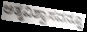
ಆತ್ಮವಿಶ್ವಾಸವನ್ನೂ